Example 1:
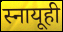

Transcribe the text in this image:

स्नायूही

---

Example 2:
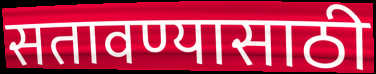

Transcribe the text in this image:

सतावण्यासाठी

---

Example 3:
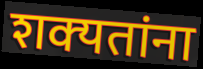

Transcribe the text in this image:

शक्यतांना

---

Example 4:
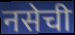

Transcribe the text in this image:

नसेची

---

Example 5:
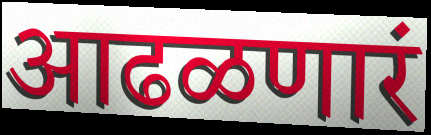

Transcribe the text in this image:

आढळणारं